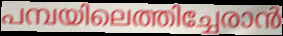
പമ്പയിലെത്തിച്ചേരാൻ